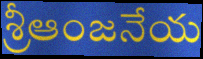
శ్రీఆంజనేయ